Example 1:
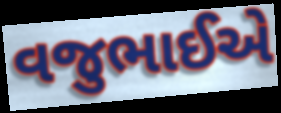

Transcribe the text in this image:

વજુભાઈએ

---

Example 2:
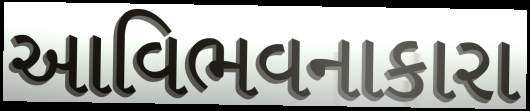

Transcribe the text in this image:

આવિભવનાકારા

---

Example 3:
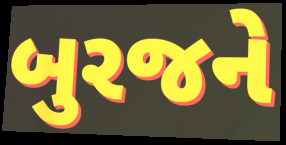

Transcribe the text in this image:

બુરજને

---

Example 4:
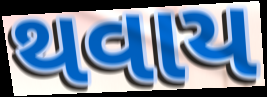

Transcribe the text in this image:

થવાય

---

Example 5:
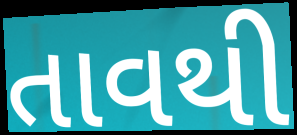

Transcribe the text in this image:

તાવથી